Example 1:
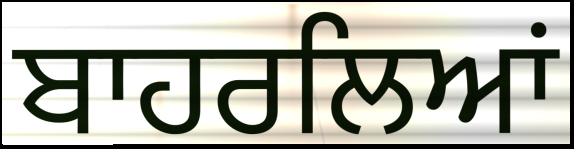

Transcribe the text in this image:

ਬਾਹਰਲਿਆਂ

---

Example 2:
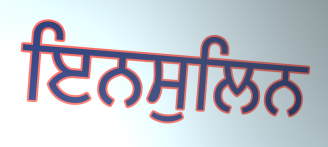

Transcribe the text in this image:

ਇਨਸੁਲਿਨ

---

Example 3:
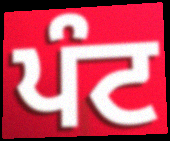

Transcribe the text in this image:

ਪੰਟ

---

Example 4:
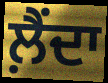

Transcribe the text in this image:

ਲ਼ੈਂਦਾ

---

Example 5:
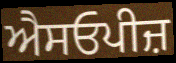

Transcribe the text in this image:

ਐਸਓਪੀਜ਼